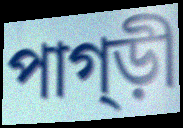
পাগ্ড়ী